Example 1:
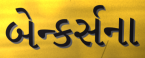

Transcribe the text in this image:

બેન્કર્સના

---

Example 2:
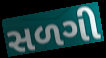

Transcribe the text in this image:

સળગી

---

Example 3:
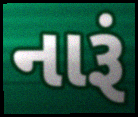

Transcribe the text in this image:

નારૂં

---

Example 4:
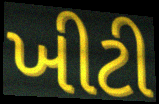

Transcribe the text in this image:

ખીટી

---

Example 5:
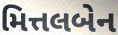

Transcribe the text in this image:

મિત્તલબેન